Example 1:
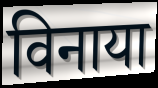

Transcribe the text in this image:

विनाया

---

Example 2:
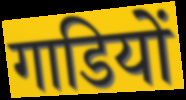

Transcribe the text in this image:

गाडियों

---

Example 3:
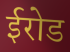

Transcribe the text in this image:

ईरोड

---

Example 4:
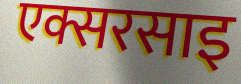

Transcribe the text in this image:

एक्सरसाइ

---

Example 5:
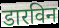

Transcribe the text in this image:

डारविन